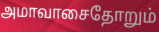
அமாவாசைதோறும்